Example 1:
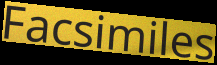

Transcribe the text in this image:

Facsimiles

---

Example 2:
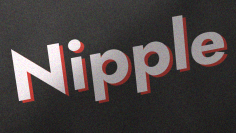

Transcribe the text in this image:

Nipple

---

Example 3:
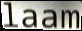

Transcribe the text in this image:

laam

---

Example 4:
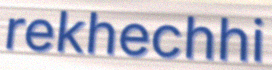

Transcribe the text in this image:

rekhechhi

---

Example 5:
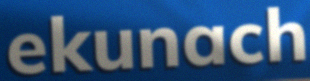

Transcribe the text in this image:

ekunach